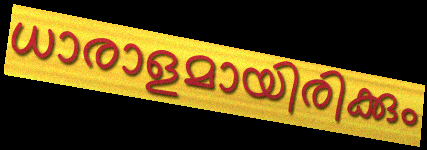
ധാരാളമായിരിക്കും